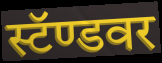
स्टॅण्डवर